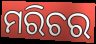
ମରିଚର